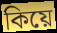
কিয়ে